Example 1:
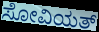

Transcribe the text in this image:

ಸೋವಿಯತ್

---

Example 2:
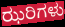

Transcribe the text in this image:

ಝರಿಗಳು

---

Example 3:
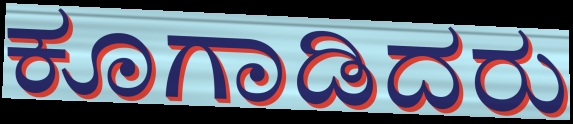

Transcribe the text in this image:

ಕೂಗಾಡಿದರು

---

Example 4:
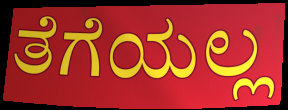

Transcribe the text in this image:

ತೆಗೆಯಲ್ಲ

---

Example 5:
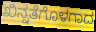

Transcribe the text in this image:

ಖಿನ್ನತೆಗೊಳಗಾದ